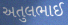
અતુલભાઈ